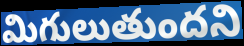
మిగులుతుందని